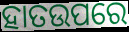
ହାତଉପରେ